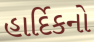
હાર્દિકનો